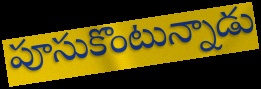
పూసుకొంటున్నాడు